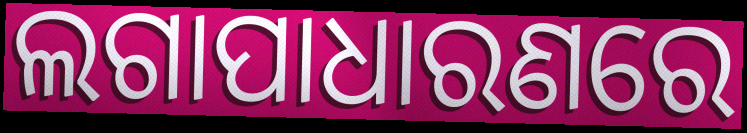
ଲଗାପାଧାରଣରେ